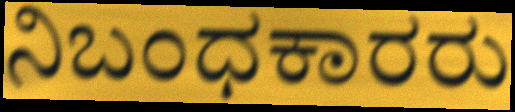
ನಿಬಂಧಕಾರರು